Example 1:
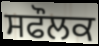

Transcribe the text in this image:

ਸਫੌਲਕ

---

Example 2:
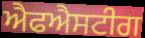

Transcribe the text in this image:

ਐਫਐਸਟੀਗ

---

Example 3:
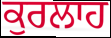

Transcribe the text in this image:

ਕੁਰਲਾਹ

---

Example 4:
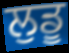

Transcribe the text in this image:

ਲੁਡੂ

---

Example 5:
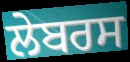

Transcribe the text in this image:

ਲੇਬਰਸ